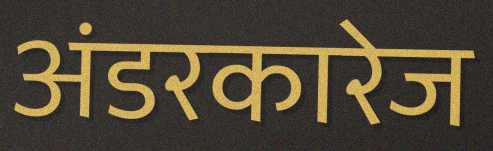
अंडरकारेज